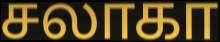
சலாகா